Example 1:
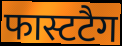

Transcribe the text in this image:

फास्टटैग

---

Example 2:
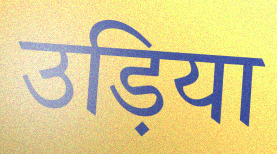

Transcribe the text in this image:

उड़िया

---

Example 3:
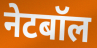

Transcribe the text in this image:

नेटबॉल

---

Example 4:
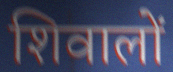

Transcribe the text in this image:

शिवालों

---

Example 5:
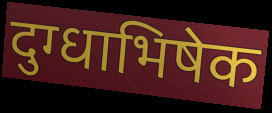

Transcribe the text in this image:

दुग्धाभिषेक